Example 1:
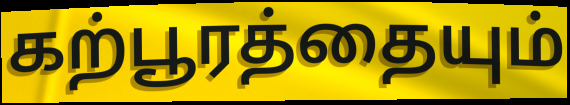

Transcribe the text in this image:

கற்பூரத்தையும்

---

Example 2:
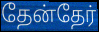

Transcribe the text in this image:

தேன்தேர்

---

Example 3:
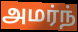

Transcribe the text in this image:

அமர்ந்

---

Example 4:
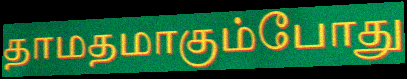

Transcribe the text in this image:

தாமதமாகும்போது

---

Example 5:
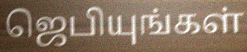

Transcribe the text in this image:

ஜெபியுங்கள்